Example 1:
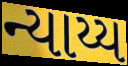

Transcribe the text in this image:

ન્યાય્ય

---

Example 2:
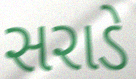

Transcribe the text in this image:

સરાડે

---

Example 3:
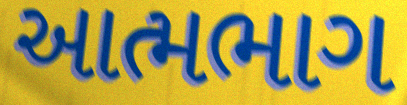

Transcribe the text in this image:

આત્મભાગ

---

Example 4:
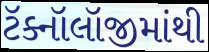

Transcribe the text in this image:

ટૅક્નૉલૉજીમાંથી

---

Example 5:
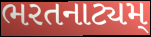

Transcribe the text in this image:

ભરતનાટ્યમ્